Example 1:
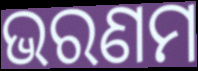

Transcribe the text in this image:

ଭରଣମ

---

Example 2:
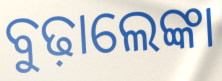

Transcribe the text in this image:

ବୁଢ଼ାଲେଙ୍କା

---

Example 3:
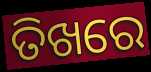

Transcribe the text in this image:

ତିଖରେ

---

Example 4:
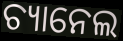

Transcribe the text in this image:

ଚ୍ୟାନେଲ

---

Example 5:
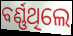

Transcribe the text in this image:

ବର୍ଣ୍ଣଥିଲେ